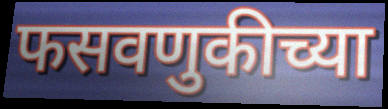
फसवणुकीच्या